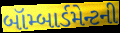
બૉમ્બાર્ડમેન્ટની